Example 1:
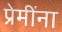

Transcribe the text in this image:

प्रेमींना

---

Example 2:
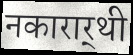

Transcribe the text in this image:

नकारार्थी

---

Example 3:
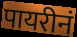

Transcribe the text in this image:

पायरीनं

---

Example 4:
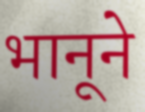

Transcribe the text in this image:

भानूने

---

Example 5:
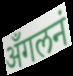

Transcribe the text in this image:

अँगलनं